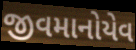
જીવમાનોયેવ